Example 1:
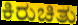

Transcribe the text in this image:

ಕಿರುಚಿತು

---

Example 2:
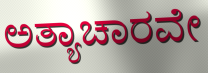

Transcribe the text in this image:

ಅತ್ಯಾಚಾರವೇ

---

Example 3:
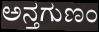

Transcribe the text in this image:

ಅನ್ತಗುಣಂ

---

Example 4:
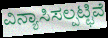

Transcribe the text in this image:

ವಿನ್ಯಾಸಿಸಲ್ಪಟ್ಟಿವೆ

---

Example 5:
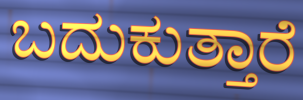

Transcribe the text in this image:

ಬದುಕುತ್ತಾರೆ